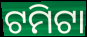
ଟମିଟା